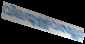
വിലയുള്ളവരല്ലോ